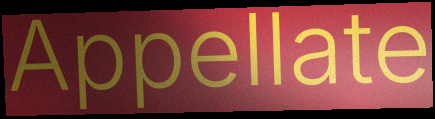
Appellate